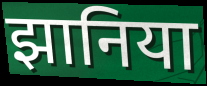
झानिया